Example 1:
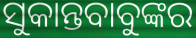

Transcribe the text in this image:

ସୁକାନ୍ତବାବୁଙ୍କର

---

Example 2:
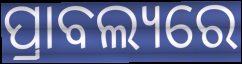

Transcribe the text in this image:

ପ୍ରାବଲ୍ୟରେ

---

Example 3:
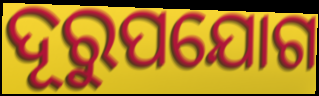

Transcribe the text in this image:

ଦୂରୁପଯୋଗ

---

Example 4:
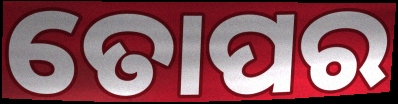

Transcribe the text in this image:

ତୋପର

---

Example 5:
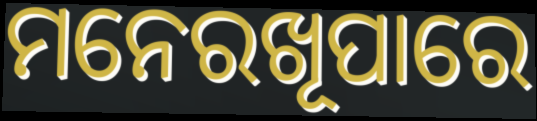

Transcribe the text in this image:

ମନେରଖୂପାରେ